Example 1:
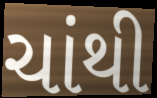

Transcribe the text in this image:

ચાંથી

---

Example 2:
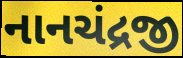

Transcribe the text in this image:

નાનચંદ્રજી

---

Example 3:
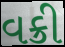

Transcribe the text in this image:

વક્રી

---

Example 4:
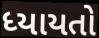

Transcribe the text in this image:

ધ્યાયતો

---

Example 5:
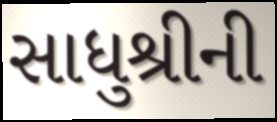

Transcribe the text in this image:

સાધુશ્રીની